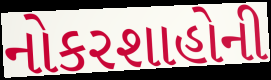
નોકરશાહોની